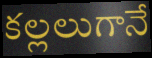
కల్లలుగానే